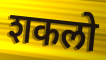
शकलो